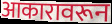
आकारावरून